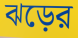
ঝড়ের